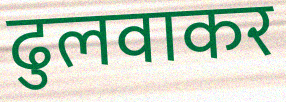
ढुलवाकर